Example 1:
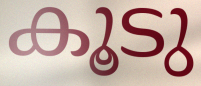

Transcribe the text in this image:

കൂടു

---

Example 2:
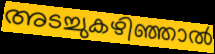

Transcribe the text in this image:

അടച്ചുകഴിഞ്ഞാൽ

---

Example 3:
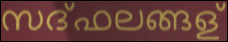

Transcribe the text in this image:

സദ്ഫലങ്ങള്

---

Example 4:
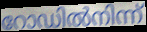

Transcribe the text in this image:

റോഡിൽനിന്ന്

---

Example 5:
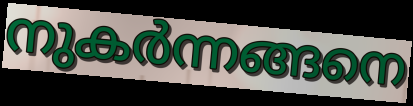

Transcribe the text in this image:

നുകർന്നങ്ങനെ